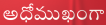
అధోముఖంగా